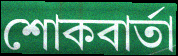
শোকবার্তা